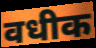
वधीक